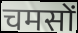
चमसों